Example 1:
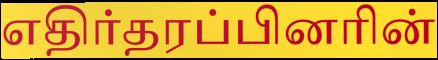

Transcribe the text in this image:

எதிர்தரப்பினரின்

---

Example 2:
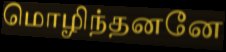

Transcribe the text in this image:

மொழிந்தனனே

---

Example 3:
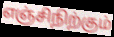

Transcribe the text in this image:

எஞ்சிநிற்கும்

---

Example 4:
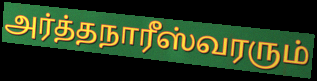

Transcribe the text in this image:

அர்த்தநாரீஸ்வரரும்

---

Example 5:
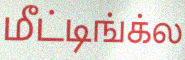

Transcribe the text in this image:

மீட்டிங்க்ல